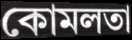
কোমলতা